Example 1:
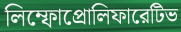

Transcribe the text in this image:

লিম্ফোপ্রোলিফারেটিভ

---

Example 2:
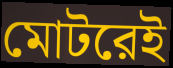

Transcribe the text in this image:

মোটরেই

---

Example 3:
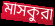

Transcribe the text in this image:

মাসকুরা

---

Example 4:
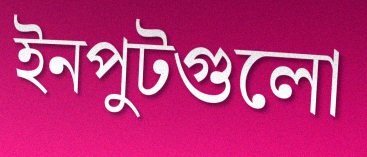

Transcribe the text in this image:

ইনপুটগুলো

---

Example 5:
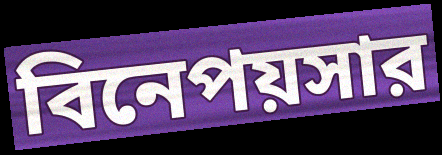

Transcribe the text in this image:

বিনেপয়সার